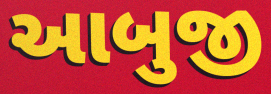
આબુજી